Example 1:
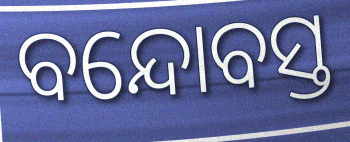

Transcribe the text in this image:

ବନ୍ଦୋବସ୍ତ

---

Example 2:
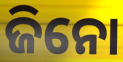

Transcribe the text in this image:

ଜିନୋ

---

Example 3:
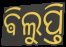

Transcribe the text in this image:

ଵିଲୁପ୍ତି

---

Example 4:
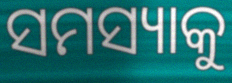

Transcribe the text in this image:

ସମସ୍ୟାକୁ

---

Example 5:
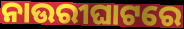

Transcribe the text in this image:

ନାଉରୀଘାଟରେ